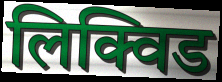
लिक्विड